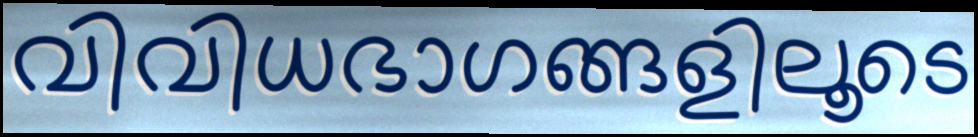
വിവിധഭാഗങ്ങളിലൂടെ